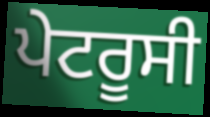
ਪੇਟਰੂਸੀ